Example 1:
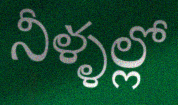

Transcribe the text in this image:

నీళ్ళల్లో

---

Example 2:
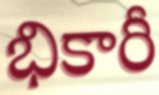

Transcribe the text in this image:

భికారీ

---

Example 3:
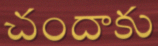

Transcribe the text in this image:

చందాకు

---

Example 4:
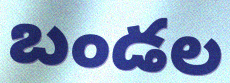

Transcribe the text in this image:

బండల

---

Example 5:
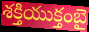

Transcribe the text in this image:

శక్తియుక్తంబై